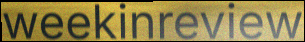
weekinreview